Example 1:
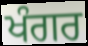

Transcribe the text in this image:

ਖੰਗਰ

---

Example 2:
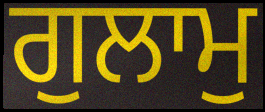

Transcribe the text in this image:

ਗੁਲਾਮੁ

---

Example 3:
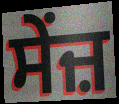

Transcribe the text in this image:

ਸੇਂਜ਼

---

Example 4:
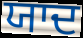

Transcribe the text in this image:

ਯਾਦ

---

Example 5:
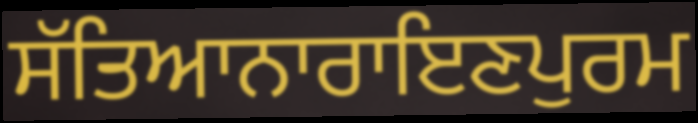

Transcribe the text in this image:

ਸੱਤਿਆਨਾਰਾਇਣਪੁਰਮ